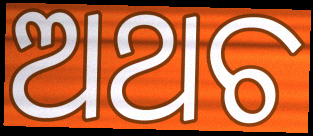
ଅଥଚ